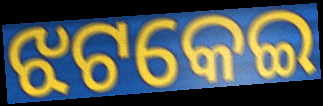
ଝଟକେଇ